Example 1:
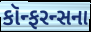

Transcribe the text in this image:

કૉન્ફરન્સના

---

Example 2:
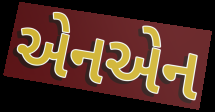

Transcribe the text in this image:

એનએન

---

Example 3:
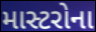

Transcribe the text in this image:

માસ્ટરોના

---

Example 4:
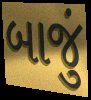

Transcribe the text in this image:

બાજું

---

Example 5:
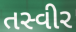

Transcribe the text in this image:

તસ્વીર